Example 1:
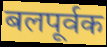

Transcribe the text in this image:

बलपूर्वक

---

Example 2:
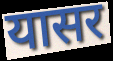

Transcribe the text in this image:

यासर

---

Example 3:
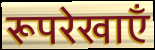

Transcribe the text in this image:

रूपरेखाएँ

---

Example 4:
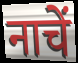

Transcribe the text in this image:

नाचें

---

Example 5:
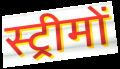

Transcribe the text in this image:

स्ट्रीमों